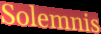
Solemnis